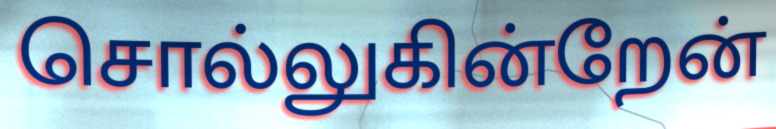
சொல்லுகின்றேன்